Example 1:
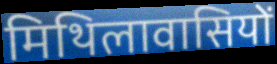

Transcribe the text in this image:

मिथिलावासियों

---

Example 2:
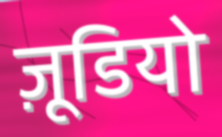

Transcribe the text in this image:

ज़ूडियो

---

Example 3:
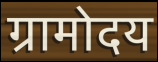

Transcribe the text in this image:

ग्रामोदय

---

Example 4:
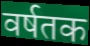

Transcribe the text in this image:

वर्षतक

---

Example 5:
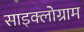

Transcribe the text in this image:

साइक्लोग्राम